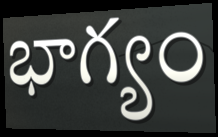
భాగ్యం